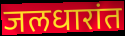
जलधारांत